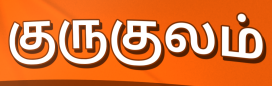
குருகுலம்